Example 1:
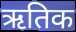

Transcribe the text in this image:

ऋतिक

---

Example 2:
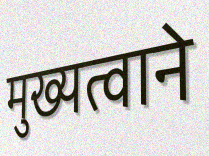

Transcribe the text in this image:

मुख्यत्वाने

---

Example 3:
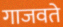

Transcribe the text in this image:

गाजवते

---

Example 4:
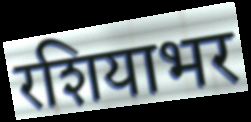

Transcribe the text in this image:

रशियाभर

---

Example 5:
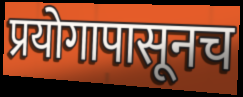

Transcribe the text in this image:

प्रयोगापासूनच